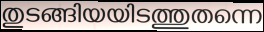
തുടങ്ങിയയിടത്തുതന്നെ